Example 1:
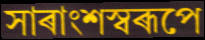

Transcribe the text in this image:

সাৰাংশস্বৰূপে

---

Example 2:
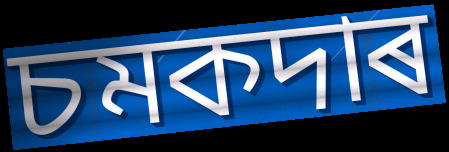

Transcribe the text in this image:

চমকদাৰ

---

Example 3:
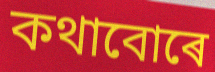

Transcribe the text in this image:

কথাবোৰে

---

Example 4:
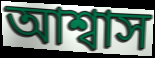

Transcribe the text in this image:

আশ্বাস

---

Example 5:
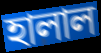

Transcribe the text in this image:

হালাল